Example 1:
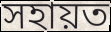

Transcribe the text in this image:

সহায়ত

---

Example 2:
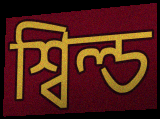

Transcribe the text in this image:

শ্বিল্ড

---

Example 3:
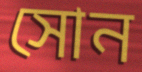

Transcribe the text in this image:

সোন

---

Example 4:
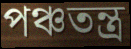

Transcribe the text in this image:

পঞ্চতন্ত্ৰ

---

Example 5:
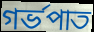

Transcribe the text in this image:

গৰ্ভপাত